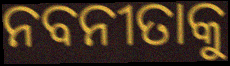
ନବନୀତାକୁ